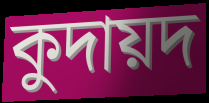
কুদায়দ